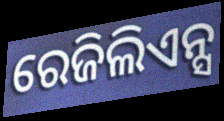
ରେଜିଲିଏନ୍ସ